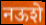
नऊशे